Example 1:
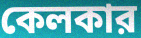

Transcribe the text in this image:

কেলকার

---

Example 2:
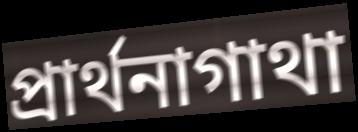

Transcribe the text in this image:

প্রার্থনাগাথা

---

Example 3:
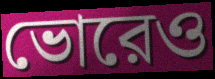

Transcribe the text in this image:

ভোরেও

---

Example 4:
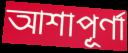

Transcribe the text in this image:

আশাপূর্ণা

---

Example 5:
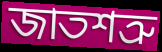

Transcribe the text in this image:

জাতশত্রু